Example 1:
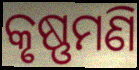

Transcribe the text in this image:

କୃଷ୍ଣମଣି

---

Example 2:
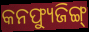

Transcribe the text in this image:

କନଫ୍ୟୁଜିଙ୍ଗ୍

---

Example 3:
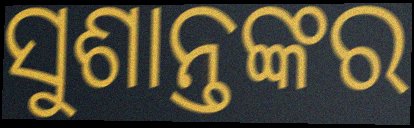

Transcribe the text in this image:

ସୁଶାନ୍ତଙ୍କର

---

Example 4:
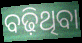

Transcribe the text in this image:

ବଢ଼ିଥିବା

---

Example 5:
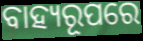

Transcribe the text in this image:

ବାହ୍ୟରୂପରେ